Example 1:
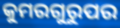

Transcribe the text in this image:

କୁମରଗୁରୁପର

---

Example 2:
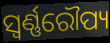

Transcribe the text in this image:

ସ୍ୱର୍ଣ୍ଣରୌପ୍ୟ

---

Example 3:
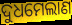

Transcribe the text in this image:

ଦୁଧମେଲାଣ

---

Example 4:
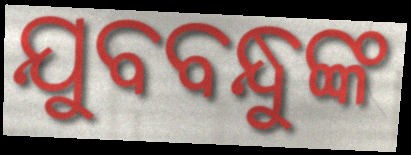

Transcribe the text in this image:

ଯୁବବନ୍ଧୁଙ୍କ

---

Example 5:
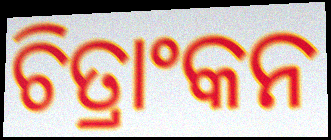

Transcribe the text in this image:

ଚିତ୍ରାଂକନ